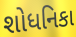
શોધનિકા